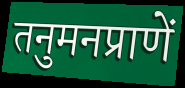
तनुमनप्राणें